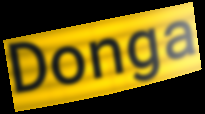
Donga